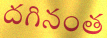
దగినంత